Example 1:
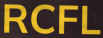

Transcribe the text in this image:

RCFL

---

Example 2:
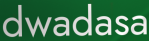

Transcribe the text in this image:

dwadasa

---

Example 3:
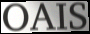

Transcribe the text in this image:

OAIS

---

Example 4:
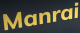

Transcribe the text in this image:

Manrai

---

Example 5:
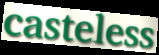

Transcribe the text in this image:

casteless